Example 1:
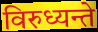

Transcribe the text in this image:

विरुध्यन्ते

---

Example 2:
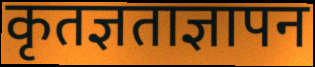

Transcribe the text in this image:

कृतज्ञताज्ञापन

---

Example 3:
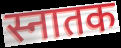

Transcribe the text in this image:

स्नातक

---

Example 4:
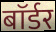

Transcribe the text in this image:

बॉर्डर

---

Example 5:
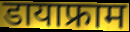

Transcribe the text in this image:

डायाफ्राम